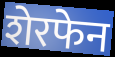
शेरफेन